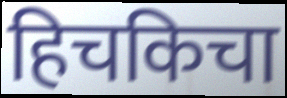
हिचकिचा